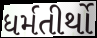
ધર્મતીર્થો